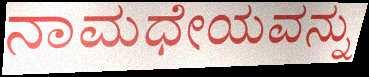
ನಾಮಧೇಯವನ್ನು